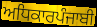
ਅਧਿਕਾਰਪੰਜਾਬੀ